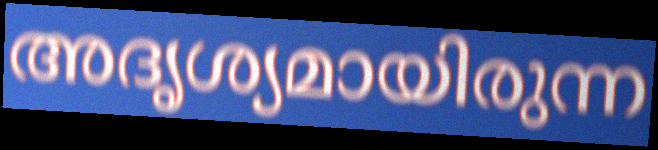
അദൃശ്യമായിരുന്ന